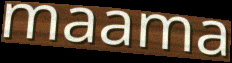
maama